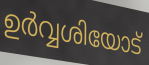
ഉർവ്വശിയോട്